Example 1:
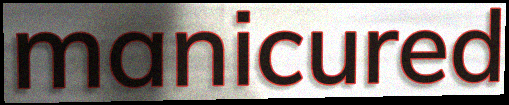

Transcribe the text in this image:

manicured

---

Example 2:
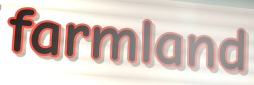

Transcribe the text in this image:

farmland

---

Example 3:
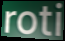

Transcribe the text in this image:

roti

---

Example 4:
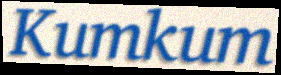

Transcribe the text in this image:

Kumkum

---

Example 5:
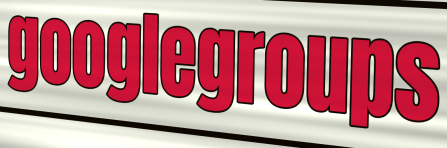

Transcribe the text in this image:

googlegroups